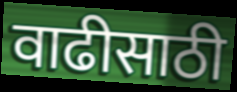
वाढीसाठी